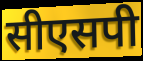
सीएसपी